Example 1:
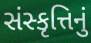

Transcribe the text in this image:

સંસ્કૃત્તિનું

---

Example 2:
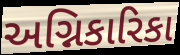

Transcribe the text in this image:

અગ્નિકારિકા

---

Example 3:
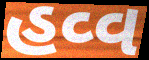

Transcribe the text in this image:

હવ્વ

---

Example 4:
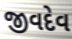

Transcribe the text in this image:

જીવદેવ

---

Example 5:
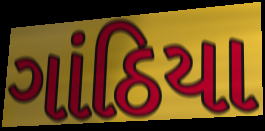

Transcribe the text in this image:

ગાંઠિયા